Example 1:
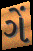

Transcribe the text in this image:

ગેં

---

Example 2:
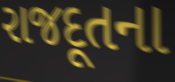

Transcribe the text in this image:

રાજદૂતના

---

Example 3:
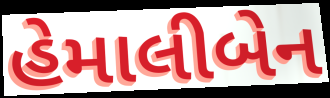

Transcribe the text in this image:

હેમાલીબેન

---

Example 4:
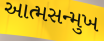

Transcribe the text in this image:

આત્મસન્મુખ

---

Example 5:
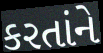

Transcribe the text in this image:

કરતાંને